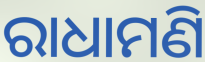
ରାଧାମଣି